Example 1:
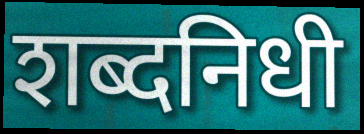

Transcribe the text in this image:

शब्दनिधी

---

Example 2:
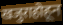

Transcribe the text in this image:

खजुराहोहून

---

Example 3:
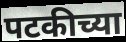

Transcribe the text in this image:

पटकीच्या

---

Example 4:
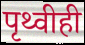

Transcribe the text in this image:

पृथ्वीही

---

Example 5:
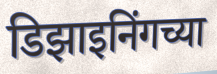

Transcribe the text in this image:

डिझाइनिंगच्या